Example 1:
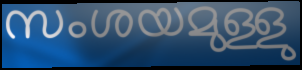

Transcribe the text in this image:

സംശയമുള്ളു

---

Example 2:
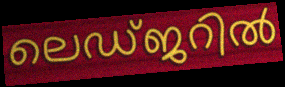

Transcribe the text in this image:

ലെഡ്ജറിൽ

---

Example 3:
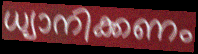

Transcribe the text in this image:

ധ്യാനിക്കണം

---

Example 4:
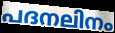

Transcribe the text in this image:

പദനലിനം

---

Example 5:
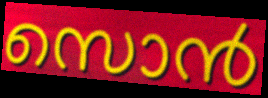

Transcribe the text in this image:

സൊൻ